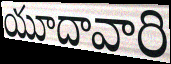
యూదావారి